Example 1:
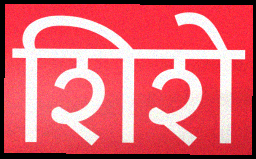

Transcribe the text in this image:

शिशे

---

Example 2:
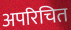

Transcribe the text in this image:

अपरिचित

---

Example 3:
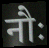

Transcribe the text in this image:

नौः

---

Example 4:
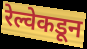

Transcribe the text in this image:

रेल्वेकडून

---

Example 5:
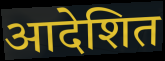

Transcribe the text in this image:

आदेशित